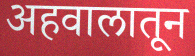
अहवालातून